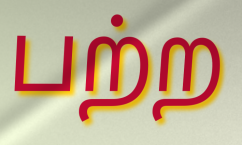
பற்ற